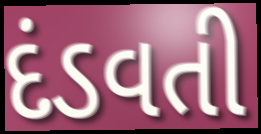
દંડવતી